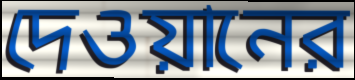
দেওয়ানের